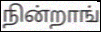
நின்றாங்